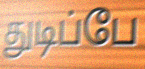
துடிப்பே